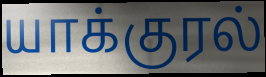
யாக்குரல்